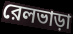
রেলভাড়া